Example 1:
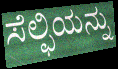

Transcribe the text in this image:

ಸೆಲ್ಫಿಯನ್ನು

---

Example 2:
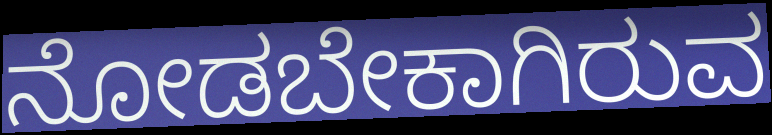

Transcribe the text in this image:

ನೋಡಬೇಕಾಗಿರುವ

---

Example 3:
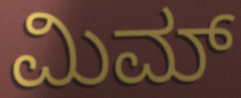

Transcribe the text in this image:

ಮಿಮ್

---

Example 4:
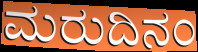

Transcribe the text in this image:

ಮರುದಿನಂ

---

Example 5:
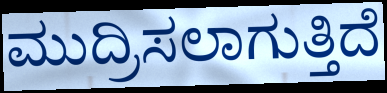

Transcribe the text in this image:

ಮುದ್ರಿಸಲಾಗುತ್ತಿದೆ